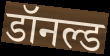
डॉनल्ड